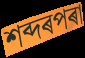
শব্দৰপৰা